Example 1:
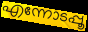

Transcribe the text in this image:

എന്നോടപ്പൂ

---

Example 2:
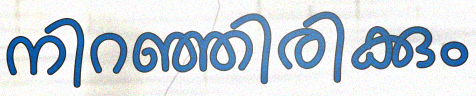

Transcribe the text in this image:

നിറഞ്ഞിരിക്കും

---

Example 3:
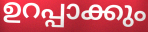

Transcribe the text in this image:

ഉറപ്പാക്കും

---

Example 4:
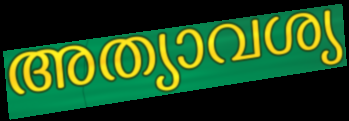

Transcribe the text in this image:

അത്യാവശ്യ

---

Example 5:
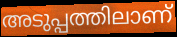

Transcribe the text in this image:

അടുപ്പത്തിലാണ്